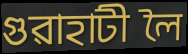
গুৱাহাটীলৈ